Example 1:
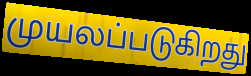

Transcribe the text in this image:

முயலப்படுகிறது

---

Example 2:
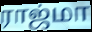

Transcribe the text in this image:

ராஜ்மா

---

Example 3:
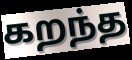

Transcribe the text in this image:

கறந்த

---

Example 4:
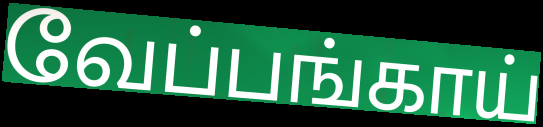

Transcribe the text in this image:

வேப்பங்காய்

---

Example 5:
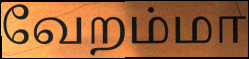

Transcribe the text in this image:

வேறம்மா